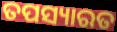
ତପସ୍ୟାରତ